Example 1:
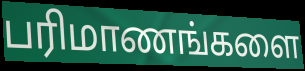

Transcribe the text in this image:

பரிமாணங்களை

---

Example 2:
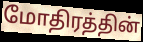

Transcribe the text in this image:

மோதிரத்தின்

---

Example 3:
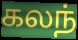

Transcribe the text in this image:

கலந்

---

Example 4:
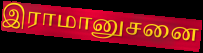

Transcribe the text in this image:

இராமானுசனை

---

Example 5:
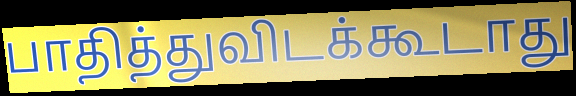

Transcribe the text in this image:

பாதித்துவிடக்கூடாது